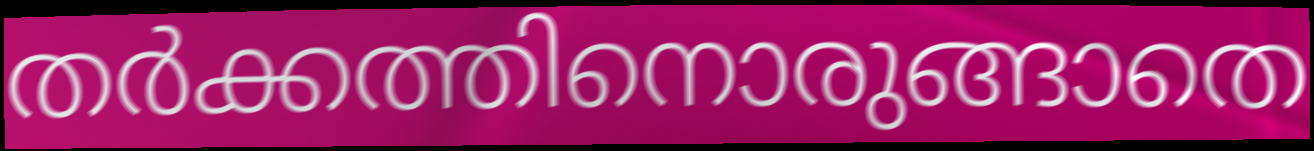
തർക്കത്തിനൊരുങ്ങാതെ